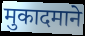
मुकादमाने